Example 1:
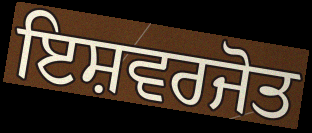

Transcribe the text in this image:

ਇਸ਼ਵਰਜੋਤ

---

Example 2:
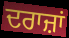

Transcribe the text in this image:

ਦਰਾਜ਼ਾਂ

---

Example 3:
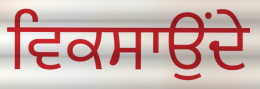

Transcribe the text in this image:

ਵਿਕਸਾਉਂਦੇ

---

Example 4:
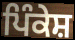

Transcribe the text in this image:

ਪਿੰਕੇਸ਼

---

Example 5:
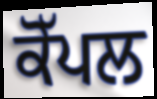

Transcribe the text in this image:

ਕੋੱਪਲ